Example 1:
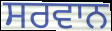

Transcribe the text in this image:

ਸਰਵਾਨ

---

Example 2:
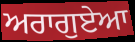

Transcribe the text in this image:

ਅਰਾਗੁਏਆ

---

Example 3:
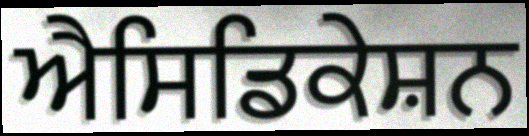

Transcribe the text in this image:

ਐਸਿਡਿਕੇਸ਼ਨ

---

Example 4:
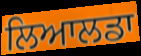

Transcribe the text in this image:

ਲਿਆਲਡਾ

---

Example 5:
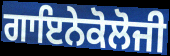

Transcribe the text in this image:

ਗਾਇਨੇਕੋਲੋਜੀ